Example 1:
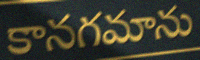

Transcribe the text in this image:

కానగమాను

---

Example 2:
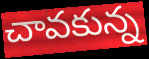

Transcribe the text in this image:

చావకున్న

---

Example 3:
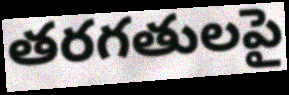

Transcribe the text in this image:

తరగతులపై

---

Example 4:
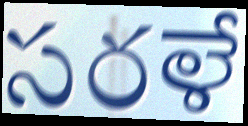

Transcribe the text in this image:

సరళే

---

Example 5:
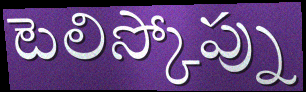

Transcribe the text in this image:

టెలిస్కోప్ను